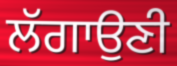
ਲੱਗਾਉਣੀ